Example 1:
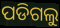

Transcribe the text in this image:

ପଡିଗଲୁ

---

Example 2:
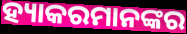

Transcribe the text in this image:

ହ୍ୟାକରମାନଙ୍କର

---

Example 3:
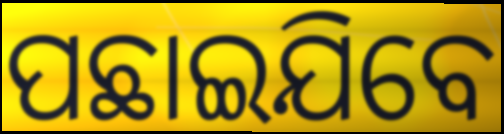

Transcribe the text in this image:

ପଛାଇଯିବେ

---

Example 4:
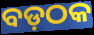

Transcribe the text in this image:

ବଡ଼ଠକ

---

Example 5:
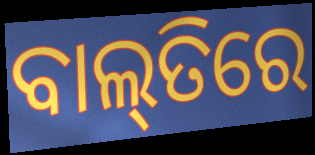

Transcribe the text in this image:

ବାଲ୍‌ତିରେ